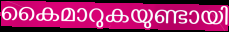
കൈമാറുകയുണ്ടായി